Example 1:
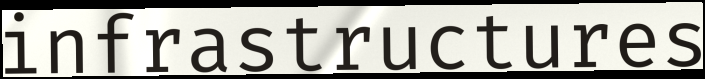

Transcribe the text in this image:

infrastructures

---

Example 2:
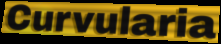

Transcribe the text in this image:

Curvularia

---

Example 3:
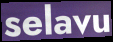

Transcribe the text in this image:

selavu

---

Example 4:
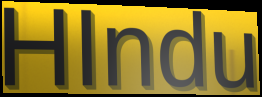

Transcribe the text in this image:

HIndu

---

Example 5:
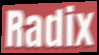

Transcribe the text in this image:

Radix